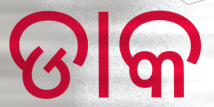
ଡାକ